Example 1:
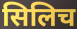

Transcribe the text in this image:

सिलिच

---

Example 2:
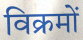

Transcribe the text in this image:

विक्रमों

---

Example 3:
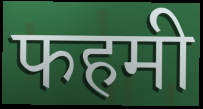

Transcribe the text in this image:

फहमी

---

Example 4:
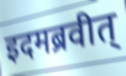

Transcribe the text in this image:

इदमब्रवीत्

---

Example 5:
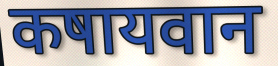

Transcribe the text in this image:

कषायवान